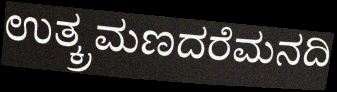
ಉತ್ಕ್ರಮಣದರೆಮನದಿ